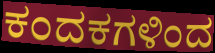
ಕಂದಕಗಳಿಂದ